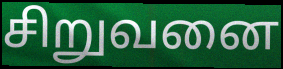
சிறுவனை